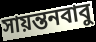
সায়ন্তনবাবু